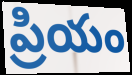
ప్రియం